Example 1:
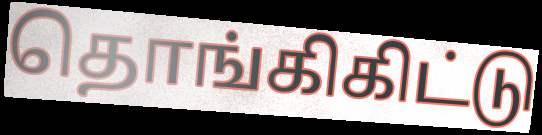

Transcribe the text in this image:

தொங்கிகிட்டு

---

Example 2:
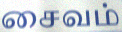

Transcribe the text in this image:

சைவம்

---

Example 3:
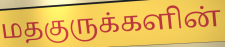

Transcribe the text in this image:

மதகுருக்களின்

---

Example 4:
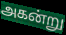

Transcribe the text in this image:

அகன்று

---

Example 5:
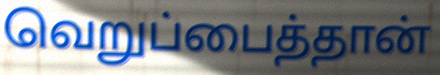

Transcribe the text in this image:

வெறுப்பைத்தான்